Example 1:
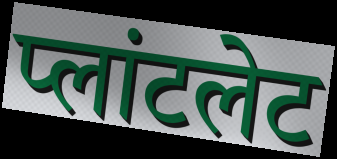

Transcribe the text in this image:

प्लांटलेट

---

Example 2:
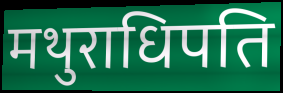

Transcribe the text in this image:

मथुराधिपति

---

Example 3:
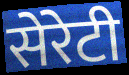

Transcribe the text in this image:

सेरेटी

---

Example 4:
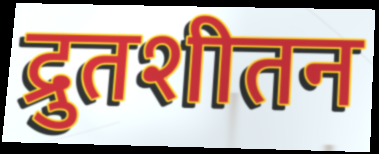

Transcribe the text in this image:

द्रुतशीतन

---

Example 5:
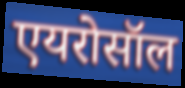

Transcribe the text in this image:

एयरोसॉल